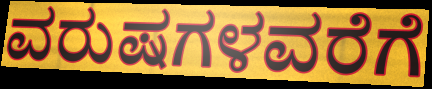
ವರುಷಗಳವರೆಗೆ